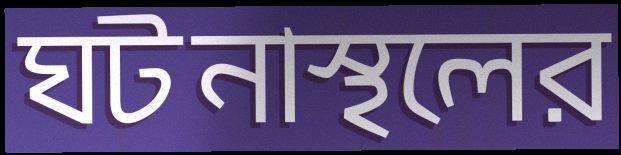
ঘটনাস্থলের